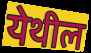
येथील